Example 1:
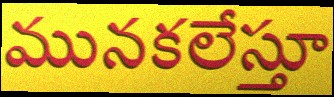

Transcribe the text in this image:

మునకలేస్తూ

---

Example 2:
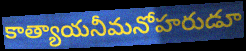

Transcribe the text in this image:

కాత్యాయనీమనోహరుడూ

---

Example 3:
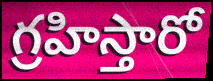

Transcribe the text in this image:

గ్రహిస్తారో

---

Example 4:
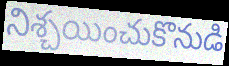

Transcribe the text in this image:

నిశ్చయించుకొనుడి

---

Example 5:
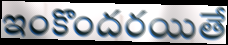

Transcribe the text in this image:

ఇంకొందరయితే